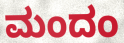
ಮಂದಂ